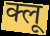
क्लू